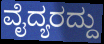
ವೈದ್ಯರದ್ದು